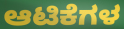
ಆಟಿಕೆಗಳ